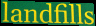
landfills